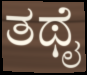
ತಥೈ